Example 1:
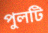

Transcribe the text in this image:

পুলটি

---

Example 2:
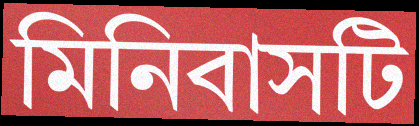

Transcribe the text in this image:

মিনিবাসটি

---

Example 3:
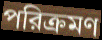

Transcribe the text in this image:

পরিক্রমণ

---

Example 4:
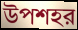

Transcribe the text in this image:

উপশহর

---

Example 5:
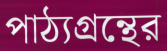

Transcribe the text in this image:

পাঠ্যগ্রন্থের